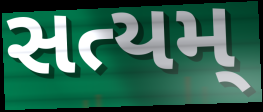
સત્યમ્